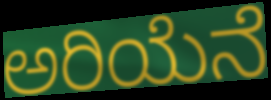
ಅರಿಯೆನೆ